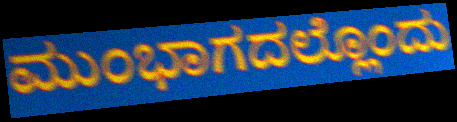
ಮುಂಭಾಗದಲ್ಲೊಂದು